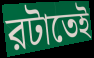
রটাতেই